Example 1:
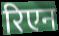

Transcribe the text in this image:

रिएन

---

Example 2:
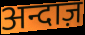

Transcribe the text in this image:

अन्दाज़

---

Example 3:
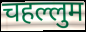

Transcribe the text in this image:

चहल्लुम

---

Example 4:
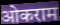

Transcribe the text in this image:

ओकराम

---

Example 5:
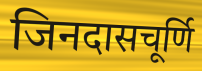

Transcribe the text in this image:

जिनदासचूर्णि